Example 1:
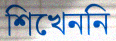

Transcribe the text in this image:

শিখেননি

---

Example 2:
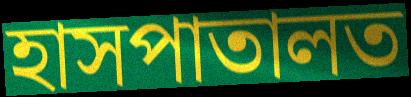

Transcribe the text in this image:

হাসপাতালত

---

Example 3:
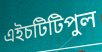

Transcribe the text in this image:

এইচটিটিপুল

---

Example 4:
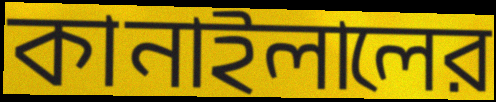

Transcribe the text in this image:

কানাইলালের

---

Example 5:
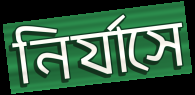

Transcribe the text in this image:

নির্যাসে